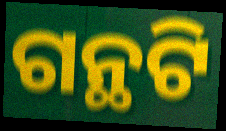
ଗନ୍ଥଟି